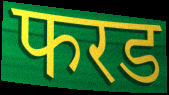
फरड